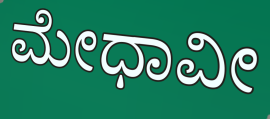
ಮೇಧಾವೀ